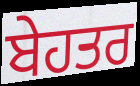
ਬੇਹਤਰ